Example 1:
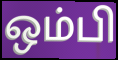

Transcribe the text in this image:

ஒம்பி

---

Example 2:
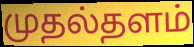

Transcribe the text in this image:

முதல்தளம்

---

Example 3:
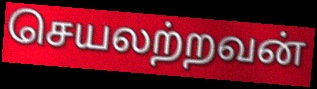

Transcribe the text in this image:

செயலற்றவன்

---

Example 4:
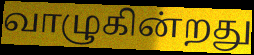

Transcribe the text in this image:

வாழுகின்றது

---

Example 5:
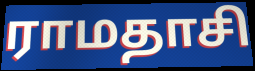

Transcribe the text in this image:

ராமதாசி